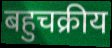
बहुचक्रीय